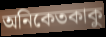
অনিকেতকাকু